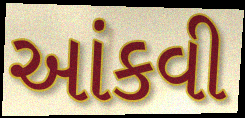
આંકવી